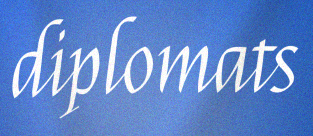
diplomats